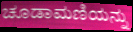
ಚೂಡಾಮಣಿಯನ್ನು